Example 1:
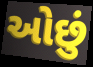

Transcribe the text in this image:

ઓછું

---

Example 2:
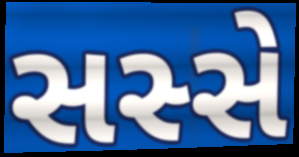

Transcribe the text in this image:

સસ્સે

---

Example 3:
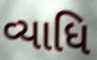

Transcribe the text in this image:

વ્યાધિ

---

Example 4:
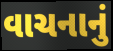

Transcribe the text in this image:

વાચનાનું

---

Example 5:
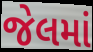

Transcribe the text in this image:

જેલમાં